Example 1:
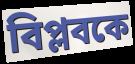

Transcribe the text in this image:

বিপ্লবকে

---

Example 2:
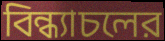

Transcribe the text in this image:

বিন্ধ্যাচলের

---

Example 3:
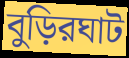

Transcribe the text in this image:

বুড়িরঘাট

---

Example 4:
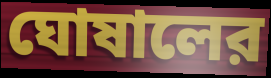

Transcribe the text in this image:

ঘোষালের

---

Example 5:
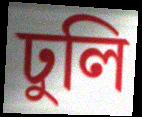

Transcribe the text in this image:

ঢুলি